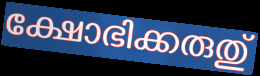
ക്ഷോഭിക്കരുതു്